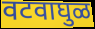
वटवाघुळ